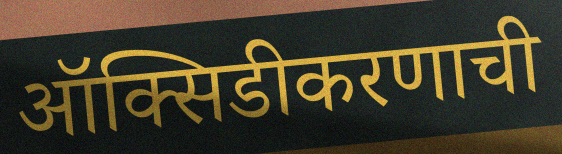
ऑक्सिडीकरणाची